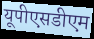
यूपीएसडीएम